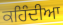
ਕਹਿੰਦੀਆ